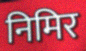
निमिर